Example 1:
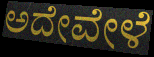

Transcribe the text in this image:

ಅದೇವೇಳೆ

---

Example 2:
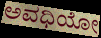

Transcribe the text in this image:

ಅವಧಿಯೋ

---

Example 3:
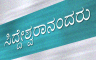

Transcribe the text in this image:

ಸಿದ್ದೇಶ್ವರಾನಂದರು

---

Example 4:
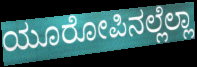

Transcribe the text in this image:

ಯೂರೋಪಿನಲ್ಲೆಲ್ಲಾ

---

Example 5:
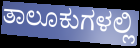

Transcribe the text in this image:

ತಾಲೂಕುಗಳಲ್ಲಿ